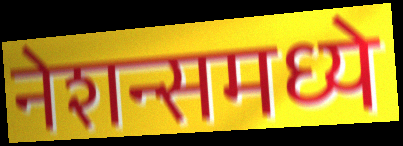
नेशन्समध्ये